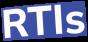
RTIs